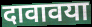
दावावया